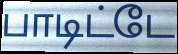
பாடிட்டே